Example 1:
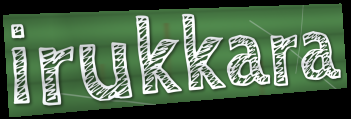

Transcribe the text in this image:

irukkara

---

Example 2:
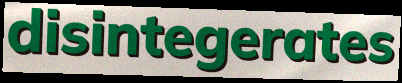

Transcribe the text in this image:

disintegerates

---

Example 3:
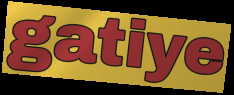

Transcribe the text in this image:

gatiye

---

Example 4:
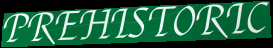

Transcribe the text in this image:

PREHISTORIC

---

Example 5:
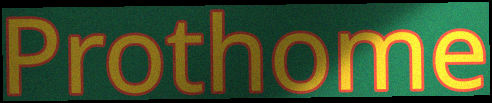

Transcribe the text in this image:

Prothome